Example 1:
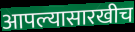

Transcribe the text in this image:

आपल्यासारखीच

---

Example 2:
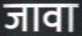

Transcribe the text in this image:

जावा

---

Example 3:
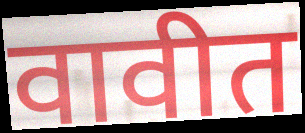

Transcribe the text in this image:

वावीत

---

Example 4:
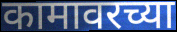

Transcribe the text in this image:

कामावरच्या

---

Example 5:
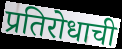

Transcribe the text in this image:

प्रतिरोधाची